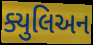
ક્યુલિઅન